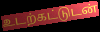
உடற்கட்டுடன்